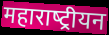
महाराष्ट्रीयन